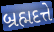
બ્રહ્મદત્તે